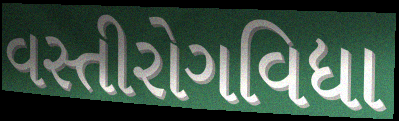
વસ્તીરોગવિદ્યા